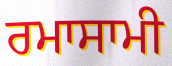
ਰਮਾਸਾਮੀ